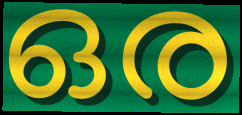
ഒര